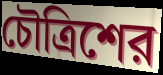
চৌত্রিশের